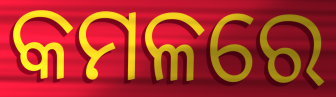
କମଳରେ